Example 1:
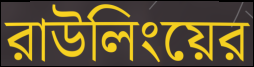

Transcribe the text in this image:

রাউলিংয়ের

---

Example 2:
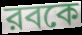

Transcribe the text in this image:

রবকে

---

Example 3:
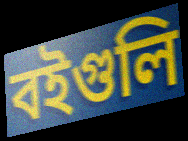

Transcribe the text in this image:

বইগুলি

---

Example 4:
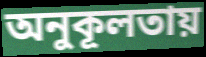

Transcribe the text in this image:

অনুকূলতায়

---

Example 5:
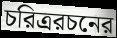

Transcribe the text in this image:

চরিত্ররচনের